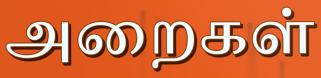
அறைகள்